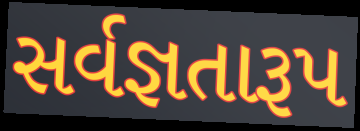
સર્વજ્ઞતારૂપ